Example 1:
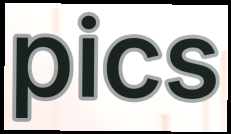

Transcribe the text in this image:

pics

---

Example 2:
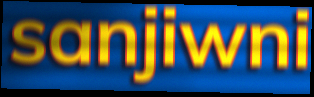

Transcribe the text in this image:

sanjiwni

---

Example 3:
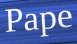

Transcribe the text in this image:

Pape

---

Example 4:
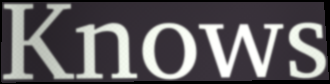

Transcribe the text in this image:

Knows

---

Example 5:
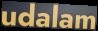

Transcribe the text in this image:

udalam